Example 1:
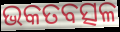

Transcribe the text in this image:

ଭକତବତ୍ସଳ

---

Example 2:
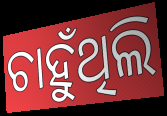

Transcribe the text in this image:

ଚାହୁଁଥିଲି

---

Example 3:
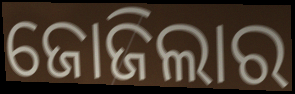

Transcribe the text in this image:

ଜୋଜିଲାର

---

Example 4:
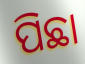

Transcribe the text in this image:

ପିଛା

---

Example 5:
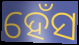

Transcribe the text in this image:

ହେଁସ